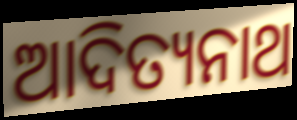
ଆଦିତ୍ୟନାଥ